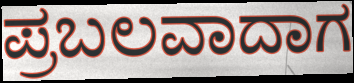
ಪ್ರಬಲವಾದಾಗ